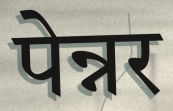
पेन्नर